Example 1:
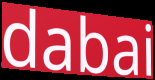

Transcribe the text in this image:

dabai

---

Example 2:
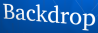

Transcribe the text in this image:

Backdrop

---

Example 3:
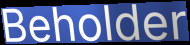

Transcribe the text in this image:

Beholder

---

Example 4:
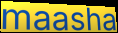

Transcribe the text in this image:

maasha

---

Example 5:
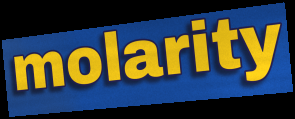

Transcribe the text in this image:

molarity